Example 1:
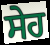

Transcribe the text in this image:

ਸੇਹ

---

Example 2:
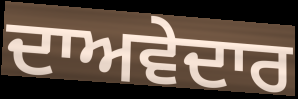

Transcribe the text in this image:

ਦਾਅਵੇਦਾਰ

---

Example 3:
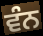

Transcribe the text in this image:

ਵੰਨ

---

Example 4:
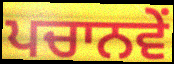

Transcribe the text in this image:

ਪਚਾਨਵੇਂ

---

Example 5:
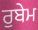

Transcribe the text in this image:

ਰੁਬੇਮ